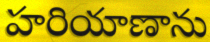
హరియాణాను